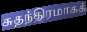
சுதந்திரமாகக்